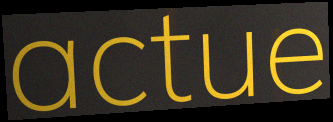
actue